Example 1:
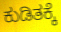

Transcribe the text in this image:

ಕುಡಿತಕ್ಕೆ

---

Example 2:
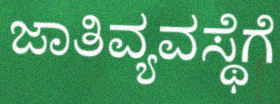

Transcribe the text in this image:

ಜಾತಿವ್ಯವಸ್ಥೆಗೆ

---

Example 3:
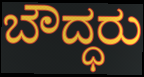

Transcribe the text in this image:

ಬೌದ್ಧರು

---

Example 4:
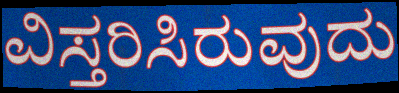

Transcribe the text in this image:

ವಿಸ್ತರಿಸಿರುವುದು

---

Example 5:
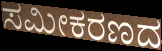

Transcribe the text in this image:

ಸಮೀಕರಣದ